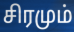
சிரமும்